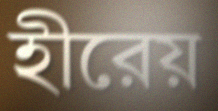
হীরেয়